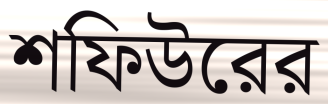
শফিউরের